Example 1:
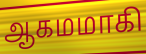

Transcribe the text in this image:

ஆகமமாகி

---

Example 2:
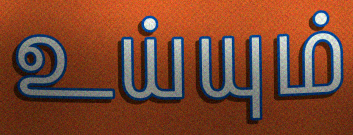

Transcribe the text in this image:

உய்யும்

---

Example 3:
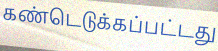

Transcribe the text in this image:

கண்டெடுக்கப்பட்டது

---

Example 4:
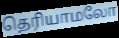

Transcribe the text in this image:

தெரியாமலோ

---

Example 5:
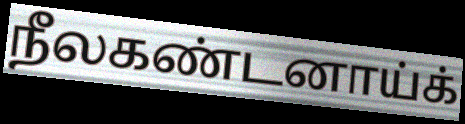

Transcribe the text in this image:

நீலகண்டனாய்க்